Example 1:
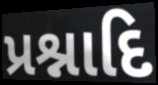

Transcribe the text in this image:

પ્રશ્નાદિ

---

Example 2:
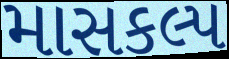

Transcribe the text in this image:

માસકલ્પ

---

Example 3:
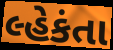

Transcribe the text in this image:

લ્હેકંતા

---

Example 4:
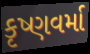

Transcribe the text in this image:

કૃષ્ણવર્મા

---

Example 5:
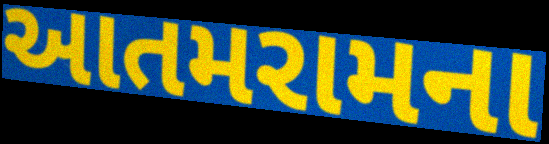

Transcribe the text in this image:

આતમરામના